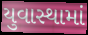
યુવાસ્થામાં